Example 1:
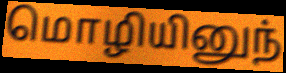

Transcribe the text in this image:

மொழியினுந்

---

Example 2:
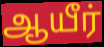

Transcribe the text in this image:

ஆயீர்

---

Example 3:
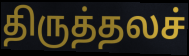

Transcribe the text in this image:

திருத்தலச்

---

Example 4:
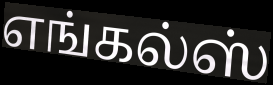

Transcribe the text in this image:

எங்கல்ஸ்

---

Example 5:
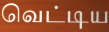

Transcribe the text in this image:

வெட்டிய